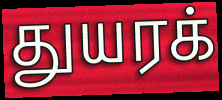
துயரக்